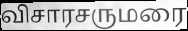
விசாரசருமரை